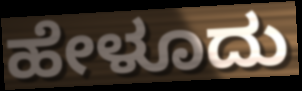
ಹೇಳೂದು